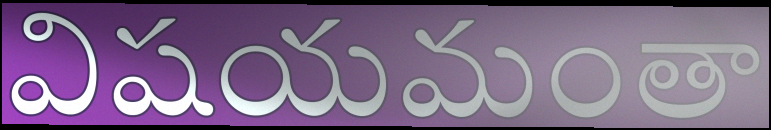
విషయమంతా